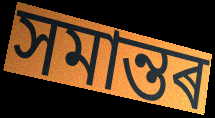
সমান্তৰ